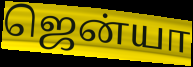
ஜென்யா